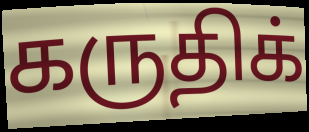
கருதிக்